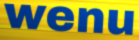
wenu